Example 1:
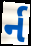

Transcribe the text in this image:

ર્ન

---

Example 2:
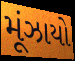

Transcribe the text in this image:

મૂંઝાયો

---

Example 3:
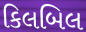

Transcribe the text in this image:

કિલબિલ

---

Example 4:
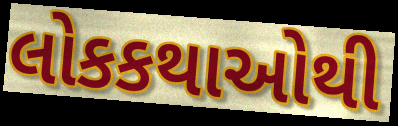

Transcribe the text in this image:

લોકકથાઓથી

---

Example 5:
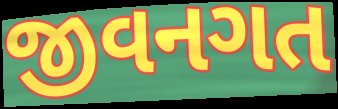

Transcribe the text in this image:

જીવનગત